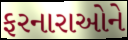
ફરનારાઓને